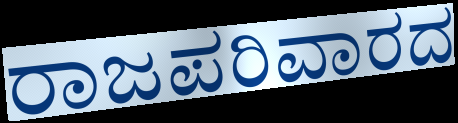
ರಾಜಪರಿವಾರದ